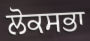
ਲੋਕਸਭਾ